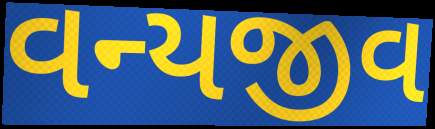
વન્યજીવ